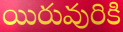
యిరువురికి